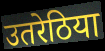
उतरेठिया